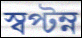
স্বপ্টম্ন